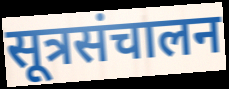
सूत्रसंचालन